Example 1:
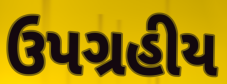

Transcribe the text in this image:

ઉપગ્રહીય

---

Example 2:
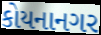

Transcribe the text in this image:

કોયનાનગર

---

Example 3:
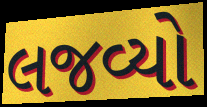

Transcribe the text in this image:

લજવ્યો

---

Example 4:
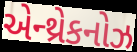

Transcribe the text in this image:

એન્થ્રેકનોઝ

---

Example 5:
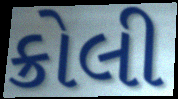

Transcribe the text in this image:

ક્રોલી